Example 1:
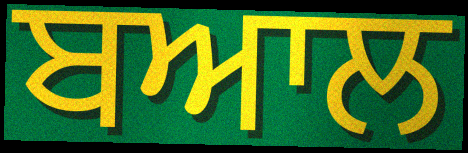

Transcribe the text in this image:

ਬਆਲ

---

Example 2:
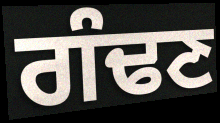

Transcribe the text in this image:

ਗੰਢਣ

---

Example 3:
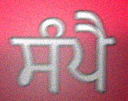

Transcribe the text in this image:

ਸੰਪੈ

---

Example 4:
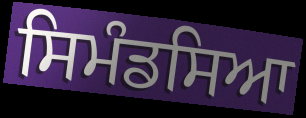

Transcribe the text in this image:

ਸਿਮੰਡਸਿਆ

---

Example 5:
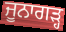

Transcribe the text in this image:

ਜੂਨਾਗੜ੍ਹ